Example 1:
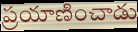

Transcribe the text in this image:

ప్రయాణించాడు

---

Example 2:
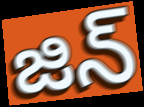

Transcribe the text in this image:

జిన్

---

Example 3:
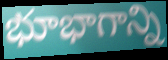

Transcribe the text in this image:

భూభాగాన్ని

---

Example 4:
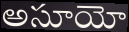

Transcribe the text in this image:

అసూయో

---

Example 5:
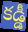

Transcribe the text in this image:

కడ్డీ